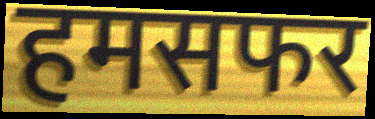
हमसफर